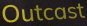
Outcast